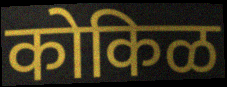
कोकिळ